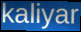
kaliyar